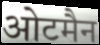
ओटमैन